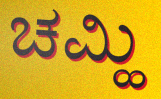
ಚಮ್ಹಿ